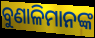
ବୁଣାଳିମାନଙ୍କ